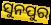
ସୁନପୁର